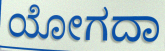
ಯೋಗದಾ